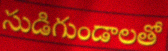
సుడిగుండాలతో